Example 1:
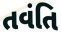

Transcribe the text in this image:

તવંતિ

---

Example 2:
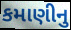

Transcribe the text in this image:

કમાણીનુ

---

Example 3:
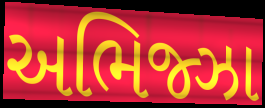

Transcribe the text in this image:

અભિજ્ઝા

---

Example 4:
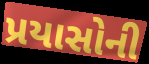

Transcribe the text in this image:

પ્રયાસોની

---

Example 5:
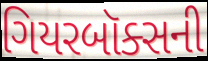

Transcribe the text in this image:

ગિયરબૉક્સની